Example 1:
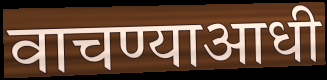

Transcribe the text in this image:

वाचण्याआधी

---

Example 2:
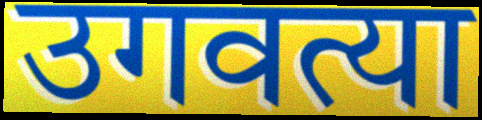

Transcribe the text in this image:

उगवत्या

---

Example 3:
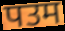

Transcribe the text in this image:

पउम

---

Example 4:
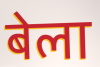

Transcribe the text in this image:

बेला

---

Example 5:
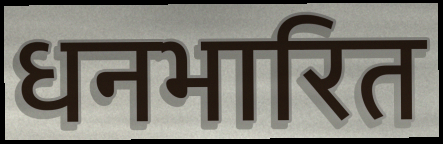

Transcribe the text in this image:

धनभारित